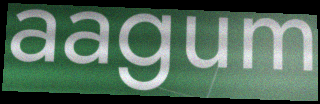
aagum